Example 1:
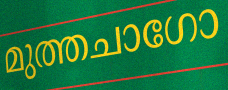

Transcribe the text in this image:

മുത്തചാഗോ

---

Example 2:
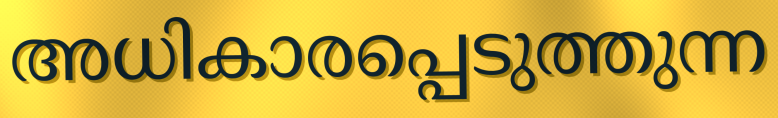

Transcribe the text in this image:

അധികാരപ്പെടുത്തുന്ന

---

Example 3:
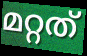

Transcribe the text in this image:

മറ്റത്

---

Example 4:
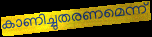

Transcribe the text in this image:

കാണിച്ചുതരണമെന്ന്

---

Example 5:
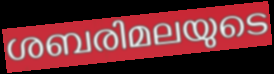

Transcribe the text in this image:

ശബരിമലയുടെ